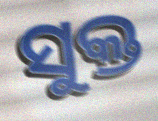
ସୁକ୍ତ